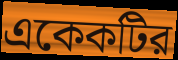
একেকটির